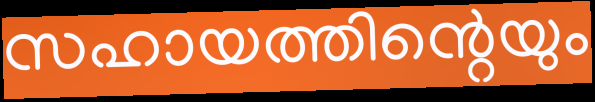
സഹായത്തിന്റെയും